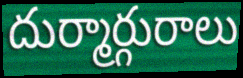
దుర్మార్గురాలు